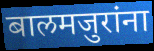
बालमजुरांना